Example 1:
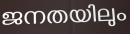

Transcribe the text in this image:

ജനതയിലും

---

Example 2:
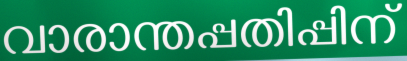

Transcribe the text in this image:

വാരാന്തപ്പതിപ്പിന്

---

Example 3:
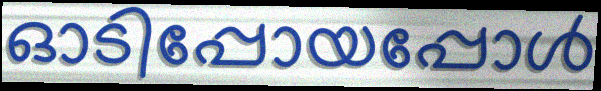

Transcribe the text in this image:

ഓടിപ്പോയപ്പോൾ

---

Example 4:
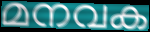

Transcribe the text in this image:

മനവക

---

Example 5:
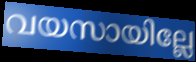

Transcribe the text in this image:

വയസായില്ലേ